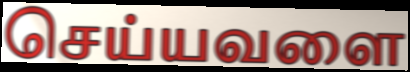
செய்யவளை